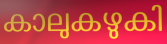
കാലുകഴുകി